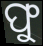
ଫୁ